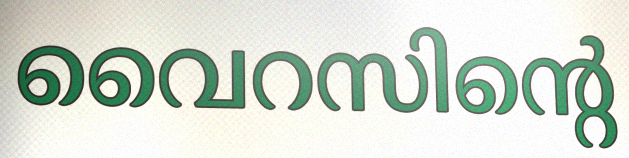
വൈറസിന്റെ